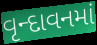
વૃન્દાવનમાં